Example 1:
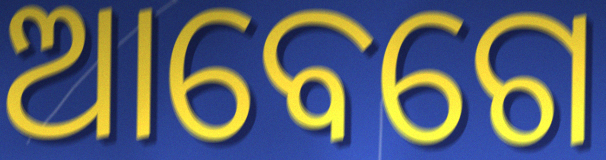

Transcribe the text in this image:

ଆବେଗେ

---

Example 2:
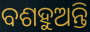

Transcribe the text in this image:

ବଶହୁଅନ୍ତି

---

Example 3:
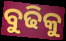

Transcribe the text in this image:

ବୁଢିକୁ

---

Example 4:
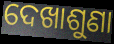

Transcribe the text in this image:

ଦେଖାଶୁଣା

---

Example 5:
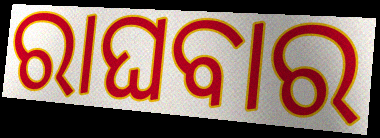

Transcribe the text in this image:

ରାଘବାର